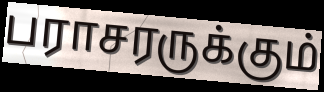
பராசரருக்கும்